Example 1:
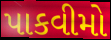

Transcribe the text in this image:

પાકવીમો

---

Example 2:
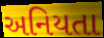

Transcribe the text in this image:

અનિયતા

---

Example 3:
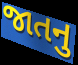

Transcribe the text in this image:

જાતનુ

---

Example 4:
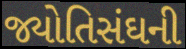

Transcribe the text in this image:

જ્યોતિસંઘની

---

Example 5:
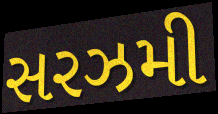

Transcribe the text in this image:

સરઝમી